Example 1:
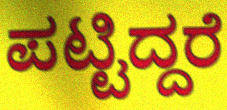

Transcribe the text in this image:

ಪಟ್ಟಿದ್ದರೆ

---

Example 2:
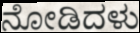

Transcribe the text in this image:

ನೋಡಿದಳು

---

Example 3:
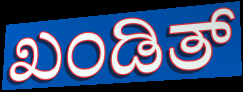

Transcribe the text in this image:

ಖಂಡಿತ್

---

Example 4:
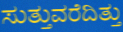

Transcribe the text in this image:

ಸುತ್ತುವರೆದಿತ್ತು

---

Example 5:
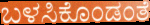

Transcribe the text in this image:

ಬಳಸಿಕೊಂಡಂತೆ